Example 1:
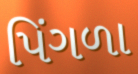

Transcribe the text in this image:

પિંગળા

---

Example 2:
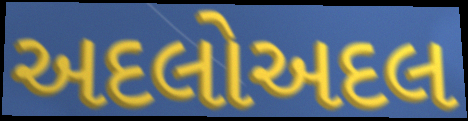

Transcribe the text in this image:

અદલોઅદલ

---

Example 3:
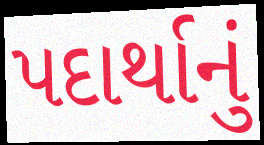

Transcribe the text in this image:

પદાર્થાનું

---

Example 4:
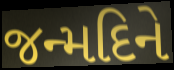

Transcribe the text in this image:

જન્મદિને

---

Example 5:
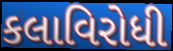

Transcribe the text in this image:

કલાવિરોધી